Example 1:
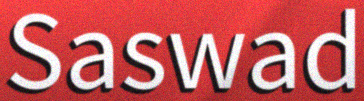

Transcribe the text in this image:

Saswad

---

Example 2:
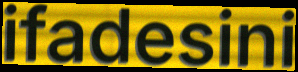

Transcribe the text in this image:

ifadesini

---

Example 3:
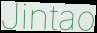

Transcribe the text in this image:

Jintao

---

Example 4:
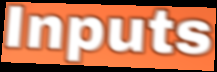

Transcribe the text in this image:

Inputs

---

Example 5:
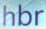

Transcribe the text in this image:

hbr